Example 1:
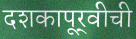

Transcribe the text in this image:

दशकापूर्वीची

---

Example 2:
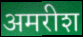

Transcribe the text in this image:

अमरीश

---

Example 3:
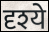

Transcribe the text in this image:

दृश्‍ये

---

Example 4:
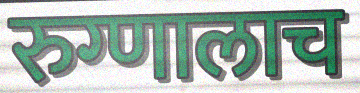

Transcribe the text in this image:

रुग्णालाच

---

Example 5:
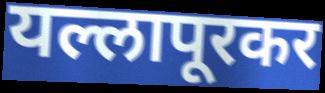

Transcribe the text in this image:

यल्लापूरकर